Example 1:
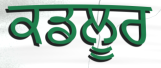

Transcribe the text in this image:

ਕਡਲੂਰ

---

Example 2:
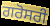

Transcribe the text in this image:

ਗਰੋਸਰੀ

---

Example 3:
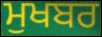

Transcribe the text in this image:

ਮੁਖਬਰ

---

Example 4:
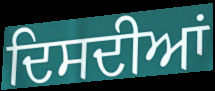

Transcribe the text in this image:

ਦਿਸਦੀਆਂ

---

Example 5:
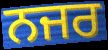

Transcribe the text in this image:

ਨਜਰ